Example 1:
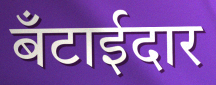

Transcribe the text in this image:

बँटाईदार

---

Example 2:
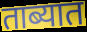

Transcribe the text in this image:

ताब्यात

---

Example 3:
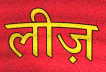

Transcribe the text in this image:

लीज़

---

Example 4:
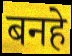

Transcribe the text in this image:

बनहे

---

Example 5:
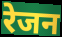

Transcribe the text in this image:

रेजन